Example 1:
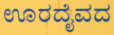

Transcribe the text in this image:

ಊರದೈವದ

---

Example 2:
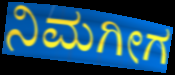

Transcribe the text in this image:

ನಿಮಗೀಗ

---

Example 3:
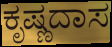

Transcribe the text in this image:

ಕೃಷ್ಣದಾಸ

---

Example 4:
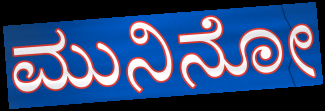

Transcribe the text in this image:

ಮುನಿನೋ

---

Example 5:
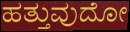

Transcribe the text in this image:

ಹತ್ತುವುದೋ